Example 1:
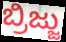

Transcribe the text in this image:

ಬ್ರಿಜ್ಜು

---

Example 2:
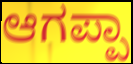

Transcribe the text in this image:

ಆಗಪ್ಪಾ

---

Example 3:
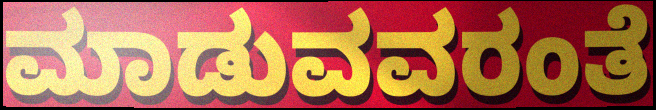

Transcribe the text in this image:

ಮಾಡುವವರಂತೆ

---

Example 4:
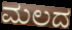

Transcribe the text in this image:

ಮಲದ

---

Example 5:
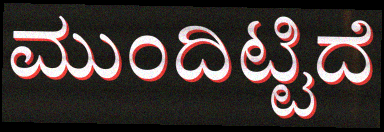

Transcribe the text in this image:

ಮುಂದಿಟ್ಟಿದೆ